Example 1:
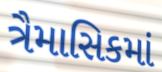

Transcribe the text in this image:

ત્રૈમાસિકમાં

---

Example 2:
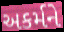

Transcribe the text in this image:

અકર્મને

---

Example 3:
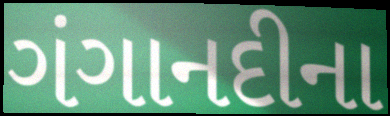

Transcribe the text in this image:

ગંગાનદીના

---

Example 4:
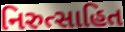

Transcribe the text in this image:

નિરુત્સાહિત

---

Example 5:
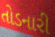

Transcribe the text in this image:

તોડનારી